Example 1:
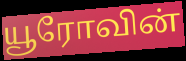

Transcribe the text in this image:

யூரோவின்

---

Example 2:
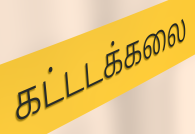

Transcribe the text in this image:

கட்டடக்கலை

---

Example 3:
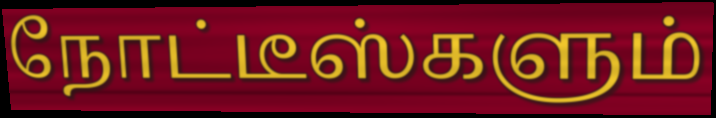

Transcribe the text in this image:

நோட்டீஸ்களும்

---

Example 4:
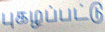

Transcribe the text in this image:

புகழப்பட்டு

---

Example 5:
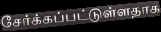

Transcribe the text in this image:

சேர்க்கப்பட்டுள்ளதாக